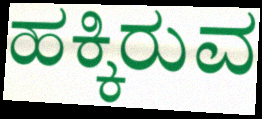
ಹಕ್ಕಿರುವ